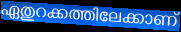
ഏതുറക്കത്തിലേക്കാണ്